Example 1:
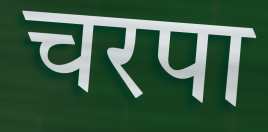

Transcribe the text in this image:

चरपा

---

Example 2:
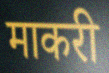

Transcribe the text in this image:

माकरी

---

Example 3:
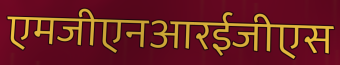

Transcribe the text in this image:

एमजीएनआरईजीएस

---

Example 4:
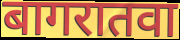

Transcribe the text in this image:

बागरातवा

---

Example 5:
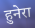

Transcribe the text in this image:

हुनेरा